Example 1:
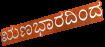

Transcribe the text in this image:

ಋಣಭಾರದಿಂದ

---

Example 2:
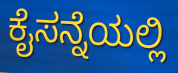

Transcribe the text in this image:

ಕೈಸನ್ನೆಯಲ್ಲಿ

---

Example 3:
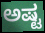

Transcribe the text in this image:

ಅಷ್ಟ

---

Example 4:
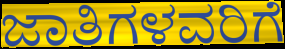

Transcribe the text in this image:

ಜಾತಿಗಳವರಿಗೆ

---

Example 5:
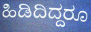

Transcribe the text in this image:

ಹಿಡಿದಿದ್ದರೂ